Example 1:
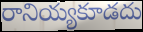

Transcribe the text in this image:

రానియ్యకూడదు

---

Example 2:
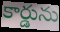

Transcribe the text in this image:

కార్డును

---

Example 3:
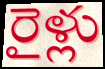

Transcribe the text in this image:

రైళ్లు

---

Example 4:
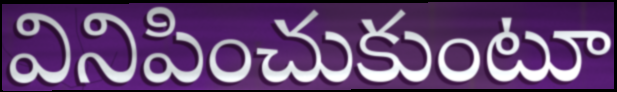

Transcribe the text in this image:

వినిపించుకుంటూ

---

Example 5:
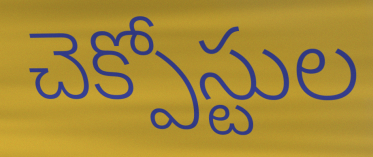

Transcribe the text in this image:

చెక్పోస్టుల